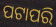
ପଟାପରି